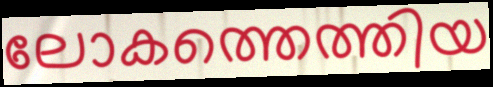
ലോകത്തെത്തിയ